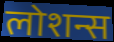
लोशन्स